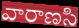
వారాణసి